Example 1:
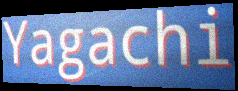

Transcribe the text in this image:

Yagachi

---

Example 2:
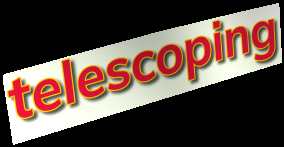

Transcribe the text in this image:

telescoping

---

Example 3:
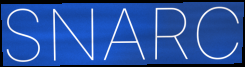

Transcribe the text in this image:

SNARC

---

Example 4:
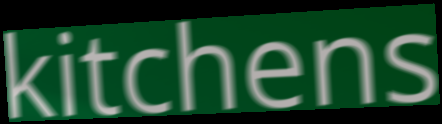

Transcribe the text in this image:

kitchens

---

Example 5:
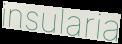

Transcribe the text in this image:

insularia